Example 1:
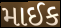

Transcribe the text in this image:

માઈક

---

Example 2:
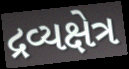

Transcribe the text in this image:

દ્રવ્યક્ષેત્ર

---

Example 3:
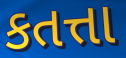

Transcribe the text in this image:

કતત્તા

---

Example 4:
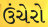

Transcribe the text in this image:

ઉંચેરો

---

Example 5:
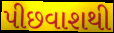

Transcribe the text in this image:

પીછવાશથી